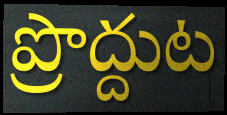
ప్రొద్దుట